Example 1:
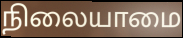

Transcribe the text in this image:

நிலையாமை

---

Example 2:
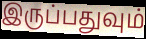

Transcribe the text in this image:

இருப்பதுவும்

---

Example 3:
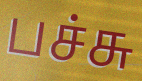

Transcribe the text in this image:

பச்சு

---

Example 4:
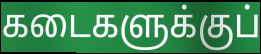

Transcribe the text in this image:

கடைகளுக்குப்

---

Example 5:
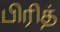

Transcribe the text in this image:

பிரித்